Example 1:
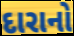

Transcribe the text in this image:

દારાનો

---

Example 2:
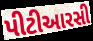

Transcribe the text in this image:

પીટીઆરસી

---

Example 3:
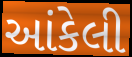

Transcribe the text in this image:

આંકેલી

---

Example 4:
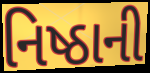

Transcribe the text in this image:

નિષ્ઠાની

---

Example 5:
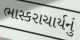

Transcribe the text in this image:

ભાસ્કરાચાર્યનું